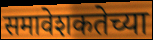
समावेशकतेच्या